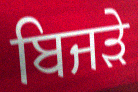
ਬਿਜੜੇ